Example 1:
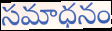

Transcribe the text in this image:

సమాధనం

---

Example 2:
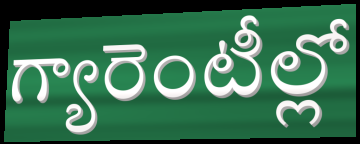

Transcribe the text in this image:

గ్యారెంటీల్లో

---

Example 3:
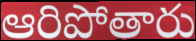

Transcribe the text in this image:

ఆరిపోతారు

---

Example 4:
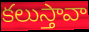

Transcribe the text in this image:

కలుస్తావా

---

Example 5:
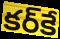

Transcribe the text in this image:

కర్‌కే